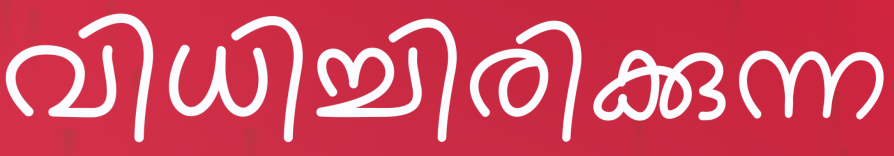
വിധിച്ചിരിക്കുന്ന